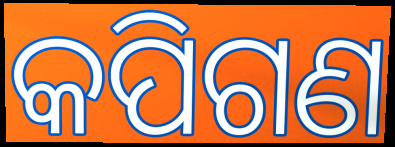
କପିଗଣ